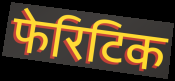
फेरिटिक